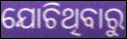
ଯୋଚିଥିବାରୁ